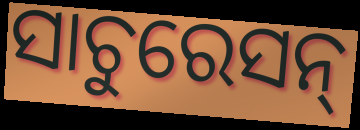
ସାଚୁରେସନ୍